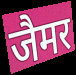
जैमर